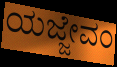
ಯಜ್ಜೇವಂ